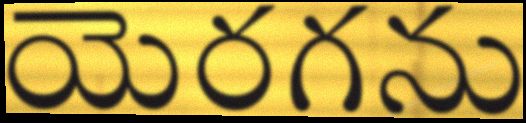
యెరగను